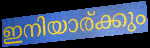
ഇനിയാര്ക്കും